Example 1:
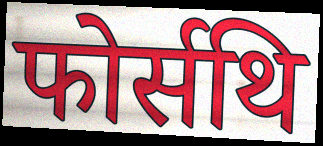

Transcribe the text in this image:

फोर्सथि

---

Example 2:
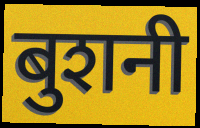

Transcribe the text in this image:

बुशनी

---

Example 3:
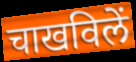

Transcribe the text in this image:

चाखविलें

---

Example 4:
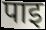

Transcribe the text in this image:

पाइ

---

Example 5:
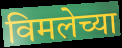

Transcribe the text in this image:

विमलेच्या